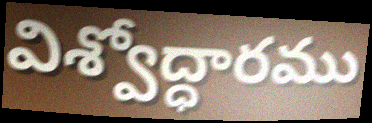
విశ్వోద్ధారము